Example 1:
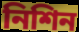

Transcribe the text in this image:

নিশিন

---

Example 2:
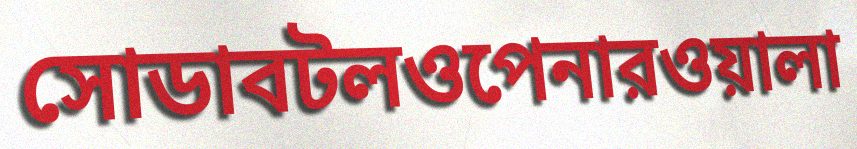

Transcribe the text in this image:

সোডাবটলওপেনারওয়ালা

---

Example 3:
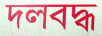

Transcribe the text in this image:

দলবদ্ধ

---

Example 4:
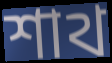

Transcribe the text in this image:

শাথ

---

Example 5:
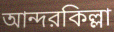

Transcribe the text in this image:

আন্দরকিল্লা